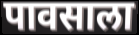
पावसाला